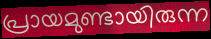
പ്രായമുണ്ടായിരുന്ന